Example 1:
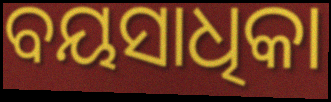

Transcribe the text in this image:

ବୟସାଧିକା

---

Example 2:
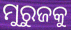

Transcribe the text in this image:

ମୁରୁଜକୁ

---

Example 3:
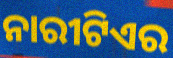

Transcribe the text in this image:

ନାରୀଟିଏର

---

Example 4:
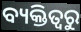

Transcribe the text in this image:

ବ୍ୟକ୍ତିତ୍ଵରୁ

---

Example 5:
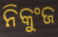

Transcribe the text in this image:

ନିକୁଂଜ